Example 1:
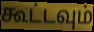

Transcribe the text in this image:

கூட்டவும்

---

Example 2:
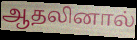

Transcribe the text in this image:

ஆதலினால்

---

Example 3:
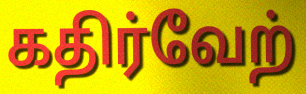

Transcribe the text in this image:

கதிர்வேற்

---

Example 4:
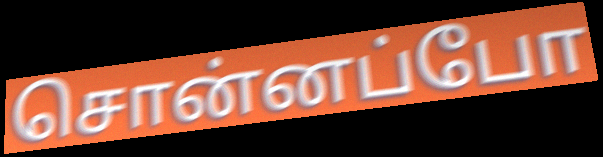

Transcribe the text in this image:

சொன்னப்போ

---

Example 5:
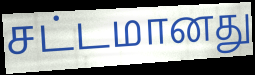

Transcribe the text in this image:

சட்டமானது